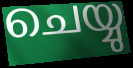
ചെയ്യു